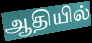
ஆதியில்